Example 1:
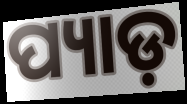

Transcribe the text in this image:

ପ୍ୟାଡ଼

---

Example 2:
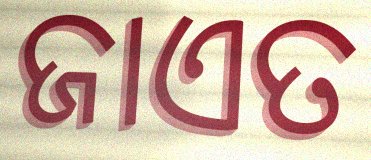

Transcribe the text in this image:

ଜାଏତ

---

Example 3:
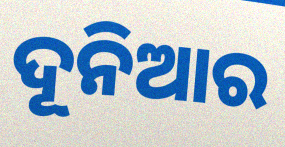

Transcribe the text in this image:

ଦୂନିଆର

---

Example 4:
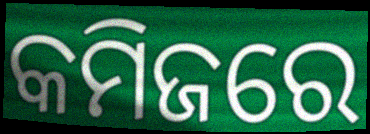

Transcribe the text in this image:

କମିଜରେ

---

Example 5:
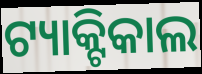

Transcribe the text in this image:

ଟ୍ୟାକ୍ଟିକାଲ